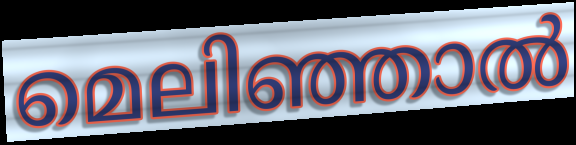
മെലിഞ്ഞാൽ